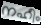
നഹീം